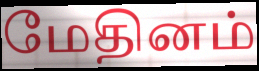
மேதினம்